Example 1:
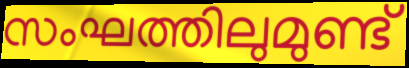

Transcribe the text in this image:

സംഘത്തിലുമുണ്ട്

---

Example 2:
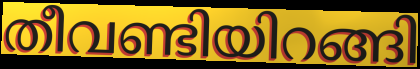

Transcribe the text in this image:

തീവണ്ടിയിറങ്ങി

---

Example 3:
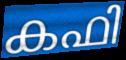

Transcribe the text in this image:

കഫി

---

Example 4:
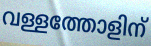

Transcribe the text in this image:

വള്ളത്തോളിന്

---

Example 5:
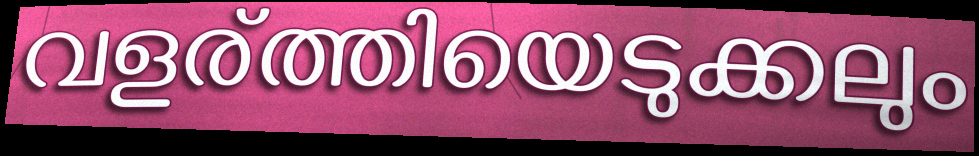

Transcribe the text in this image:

വളര്ത്തിയെടുക്കലും